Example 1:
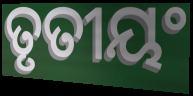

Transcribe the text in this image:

ତୃତୀୟଂ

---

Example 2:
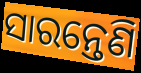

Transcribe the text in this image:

ସାରନ୍ତେଣି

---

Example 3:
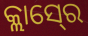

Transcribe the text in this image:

କ୍ଲାସ୍‍ରେ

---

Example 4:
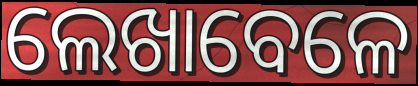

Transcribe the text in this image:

ଲେଖାବେଳେ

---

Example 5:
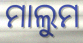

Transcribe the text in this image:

ମାଲୁମ